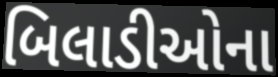
બિલાડીઓના